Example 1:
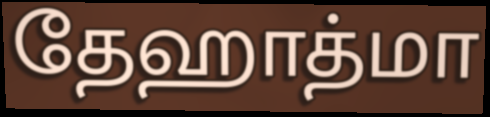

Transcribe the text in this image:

தேஹாத்மா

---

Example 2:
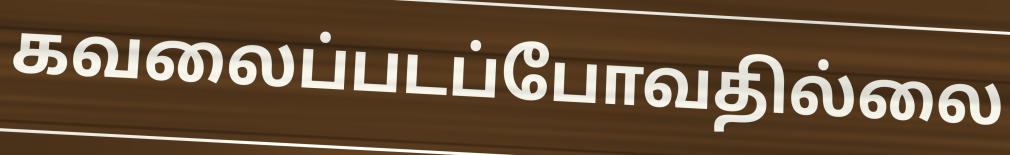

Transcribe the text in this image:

கவலைப்படப்போவதில்லை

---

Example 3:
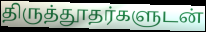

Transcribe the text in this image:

திருத்தூதர்களுடன்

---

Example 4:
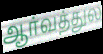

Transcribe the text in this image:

ஆர்வத்துல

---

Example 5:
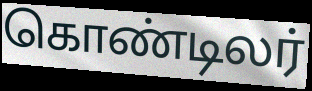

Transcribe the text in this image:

கொண்டிலர்